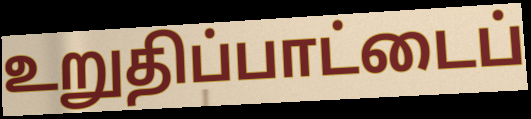
உறுதிப்பாட்டைப்